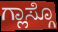
ಗ್ಲಾಸ್ಗೊ